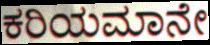
ಕರಿಯಮಾನೇ